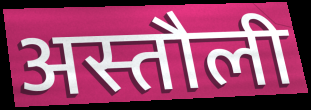
अस्तौली